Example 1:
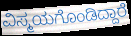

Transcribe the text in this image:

ವಿಸ್ಮಯಗೊಂಡಿದ್ದಾರೆ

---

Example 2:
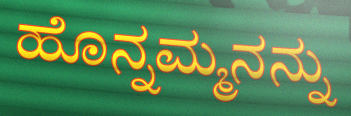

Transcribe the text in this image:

ಹೊನ್ನಮ್ಮನನ್ನು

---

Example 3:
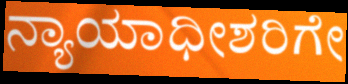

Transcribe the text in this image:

ನ್ಯಾಯಾಧೀಶರಿಗೇ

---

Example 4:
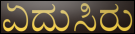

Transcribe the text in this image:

ಏದುಸಿರು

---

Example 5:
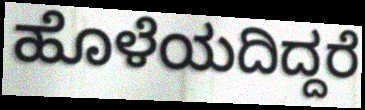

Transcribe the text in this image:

ಹೊಳೆಯದಿದ್ದರೆ